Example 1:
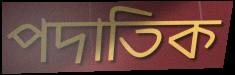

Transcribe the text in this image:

পদাতিক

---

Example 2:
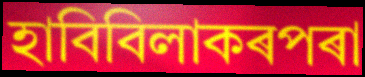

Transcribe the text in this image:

হাবিবিলাকৰপৰা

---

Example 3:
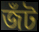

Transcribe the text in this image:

জঁট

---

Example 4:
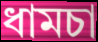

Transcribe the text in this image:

ধামচা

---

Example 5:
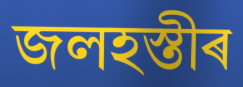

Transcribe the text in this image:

জলহস্তীৰ